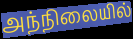
அந்நிலையில்